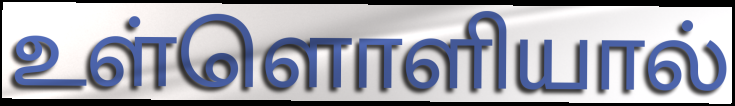
உள்ளொளியால்